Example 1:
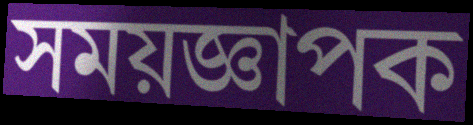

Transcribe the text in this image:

সময়জ্ঞাপক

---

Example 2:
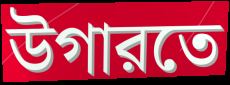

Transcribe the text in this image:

উগারতে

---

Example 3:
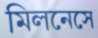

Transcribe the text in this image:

মিলনেসে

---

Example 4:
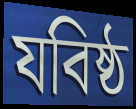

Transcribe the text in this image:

যবিষ্ঠ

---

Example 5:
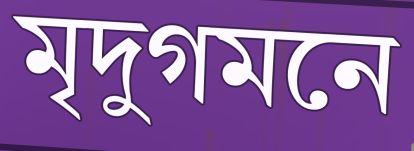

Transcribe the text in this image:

মৃদুগমনে